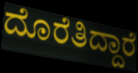
ದೊರೆತಿದ್ದಾರೆ